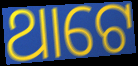
ଥାଟେ